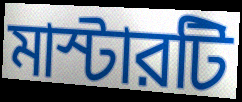
মাস্টারটি